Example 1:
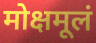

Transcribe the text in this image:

मोक्षमूलं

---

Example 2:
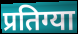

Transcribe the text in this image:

प्रतिग्या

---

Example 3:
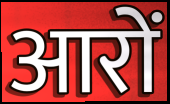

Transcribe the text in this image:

आरों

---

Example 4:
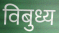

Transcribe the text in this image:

विबुध्य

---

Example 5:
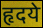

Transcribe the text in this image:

हृदये